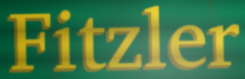
Fitzler